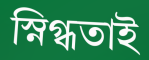
স্নিগ্ধতাই